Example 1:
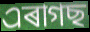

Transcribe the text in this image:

এৰাগছ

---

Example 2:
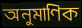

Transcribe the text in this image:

অনুমাণিক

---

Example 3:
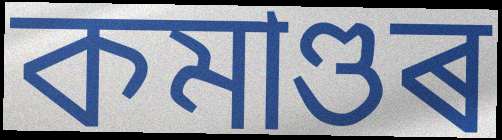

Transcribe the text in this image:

কমাণ্ডৰ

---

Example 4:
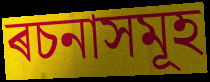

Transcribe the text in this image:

ৰচনাসমূহ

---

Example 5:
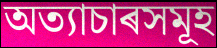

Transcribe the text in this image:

অত্যাচাৰসমূহ